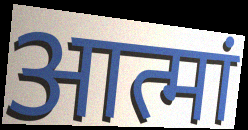
आत्मां